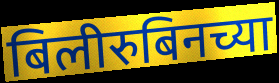
बिलीरुबिनच्या